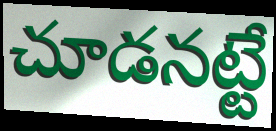
చూడనట్టే